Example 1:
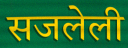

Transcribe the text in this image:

सजलेली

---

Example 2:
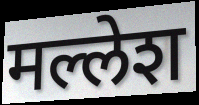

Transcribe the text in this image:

मल्लेश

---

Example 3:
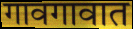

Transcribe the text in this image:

गावगावात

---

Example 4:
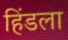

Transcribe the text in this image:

हिंडला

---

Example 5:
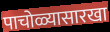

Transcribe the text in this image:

पाचोळ्यासारखा